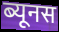
ब्यूनस